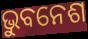
ଭୁବନେଶ